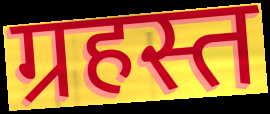
ग्रहस्त